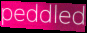
peddled